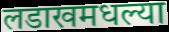
लडाखमधल्या